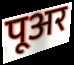
पूअर